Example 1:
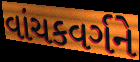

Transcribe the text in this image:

વાંચકવર્ગને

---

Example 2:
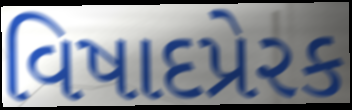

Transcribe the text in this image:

વિષાદપ્રેરક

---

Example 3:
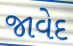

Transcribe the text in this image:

જાવેદ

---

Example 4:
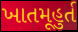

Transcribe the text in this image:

ખાતમૂહુર્ત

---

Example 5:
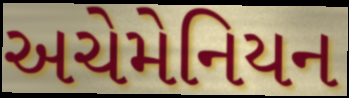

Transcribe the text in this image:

અચેમેનિયન